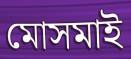
মোসমাই